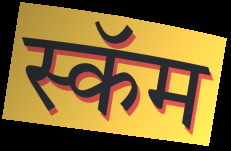
स्कॅम